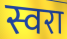
स्‍वरा